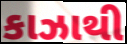
કાઝાથી